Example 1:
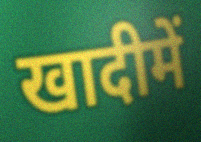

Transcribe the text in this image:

खादीमें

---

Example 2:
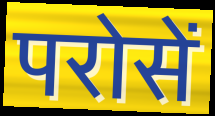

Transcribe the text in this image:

परोसें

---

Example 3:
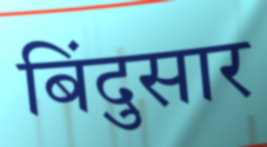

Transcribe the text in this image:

बिंदुसार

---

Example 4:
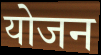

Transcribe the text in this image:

योजन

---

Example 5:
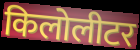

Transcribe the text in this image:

किलोलीटर